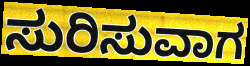
ಸುರಿಸುವಾಗ